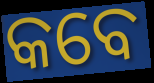
କବେ